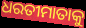
ଧରତୀମାତାକୁ